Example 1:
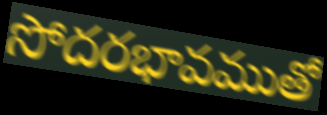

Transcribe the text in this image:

సోదరభావముతో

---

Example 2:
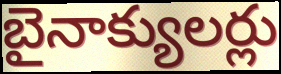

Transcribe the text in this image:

బైనాక్యులర్లు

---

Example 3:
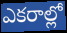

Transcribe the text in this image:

ఎకరాల్లో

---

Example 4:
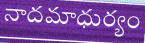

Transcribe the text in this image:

నాదమాధుర్యం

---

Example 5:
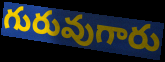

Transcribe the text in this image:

గురువుగారు